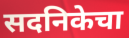
सदनिकेचा